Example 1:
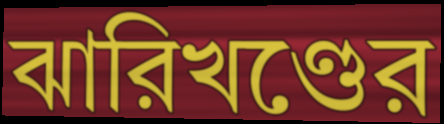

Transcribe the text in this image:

ঝারিখণ্ডের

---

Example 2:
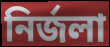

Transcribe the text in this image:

নির্জলা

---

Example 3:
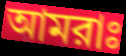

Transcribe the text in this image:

আমরাঃ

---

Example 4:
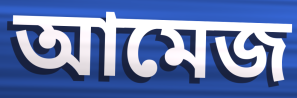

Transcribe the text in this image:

আমেজ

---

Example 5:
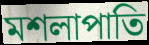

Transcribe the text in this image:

মশলাপাতি